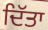
ਦਿੱਤਾ